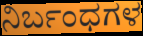
ನಿರ್ಬಂಧಗಳ